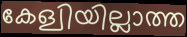
കേള്വിയില്ലാത്ത